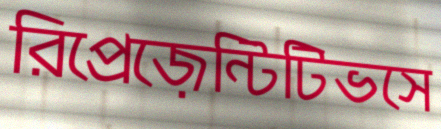
রিপ্রেজ়েন্টিটিভসে